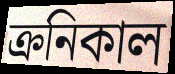
ক্রনিকাল